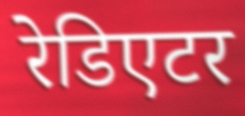
रेडिएटर